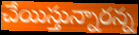
చేయిస్తున్నారన్న